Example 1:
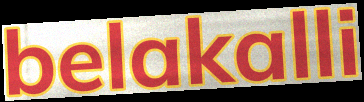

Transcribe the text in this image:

belakalli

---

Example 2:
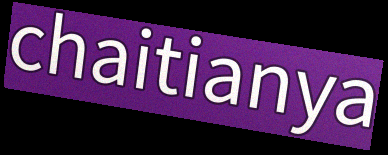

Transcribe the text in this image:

chaitianya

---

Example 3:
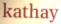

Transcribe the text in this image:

kathay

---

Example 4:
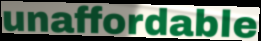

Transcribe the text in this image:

unaffordable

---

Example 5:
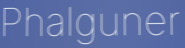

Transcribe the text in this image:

Phalguner